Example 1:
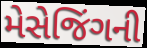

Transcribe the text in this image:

મેસેજિંગની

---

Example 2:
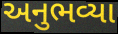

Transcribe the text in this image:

અનુભવ્યા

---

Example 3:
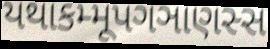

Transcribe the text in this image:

યથાકમ્મૂપગઞાણસ્સ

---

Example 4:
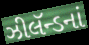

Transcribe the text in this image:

ઝીલૅન્ડનાં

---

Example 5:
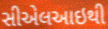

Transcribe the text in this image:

સીએલઆઇથી